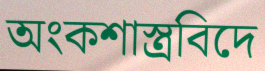
অংকশাস্ত্ৰবিদে